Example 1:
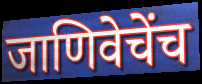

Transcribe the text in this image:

जाणिवेचेंच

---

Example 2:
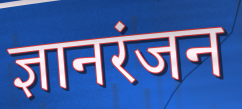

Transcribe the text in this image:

ज्ञानरंजन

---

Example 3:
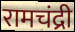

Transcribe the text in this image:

रामचंद्री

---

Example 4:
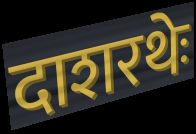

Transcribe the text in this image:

दाशरथेः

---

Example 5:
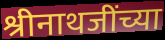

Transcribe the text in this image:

श्रीनाथजींच्या